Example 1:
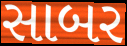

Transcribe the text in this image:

સાબર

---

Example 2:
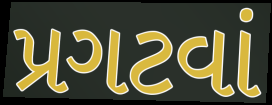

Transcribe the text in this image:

પ્રગટવાં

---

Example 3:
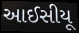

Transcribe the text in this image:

આઈસીયૂ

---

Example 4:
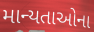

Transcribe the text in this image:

માન્યતાઓના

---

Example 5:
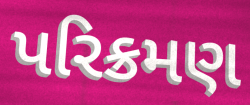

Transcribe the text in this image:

પરિક્રમણ